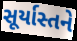
સૂર્યાસ્તને